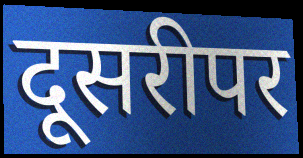
दूसरीपर